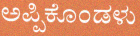
ಅಪ್ಪಿಕೊಂಡಳು